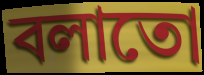
বলাতো